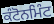
ਕੰਟੋਨਮਿੰਟ